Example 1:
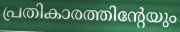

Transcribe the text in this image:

പ്രതികാരത്തിന്റേയും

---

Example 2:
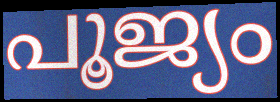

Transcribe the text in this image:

പൂജ്യം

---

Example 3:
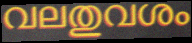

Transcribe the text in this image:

വലതുവശം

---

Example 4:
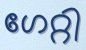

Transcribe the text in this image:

ഗേറ്റി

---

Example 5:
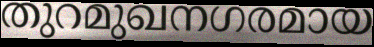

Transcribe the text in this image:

തുറമുഖനഗരമായ